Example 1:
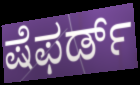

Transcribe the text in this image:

ಷೆಫರ್ಡ್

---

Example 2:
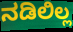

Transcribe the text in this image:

ನಡಿಲಿಲ್ಲ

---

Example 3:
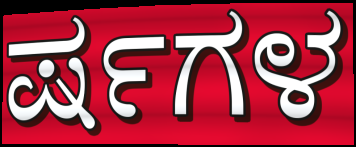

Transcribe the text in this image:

ರ್ಷಗಳ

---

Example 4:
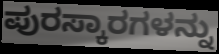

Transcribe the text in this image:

ಪುರಸ್ಕಾರಗಳನ್ನು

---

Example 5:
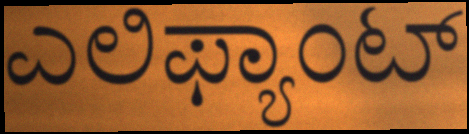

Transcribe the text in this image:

ಎಲಿಫ್ಯಾಂಟ್